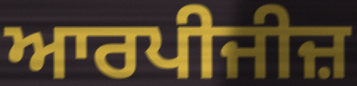
ਆਰਪੀਜੀਜ਼